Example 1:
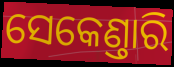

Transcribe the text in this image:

ସେକେଣ୍ତାରି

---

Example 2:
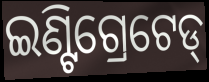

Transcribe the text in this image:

ଇଣ୍ଟିଗ୍ରେଟେଡ୍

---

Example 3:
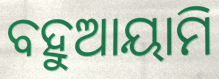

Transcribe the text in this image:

ବହୁଆୟାମି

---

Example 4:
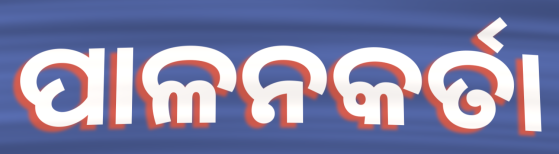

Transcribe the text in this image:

ପାଳନକର୍ତା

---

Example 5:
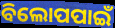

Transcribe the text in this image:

ବିଲୋପପାଇଁ